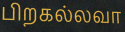
பிறகல்லவா